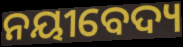
ନୟୀବେଦ୍ୟ